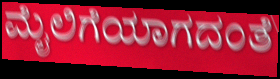
ಮೈಲಿಗೆಯಾಗದಂತೆ